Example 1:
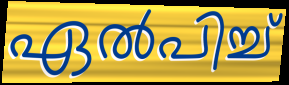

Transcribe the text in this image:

ഏൽപിച്ച്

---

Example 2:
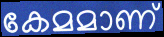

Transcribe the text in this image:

കേമമാണ്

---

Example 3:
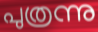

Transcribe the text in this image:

പുത്രന്നു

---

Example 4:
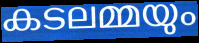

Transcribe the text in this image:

കടലമ്മയും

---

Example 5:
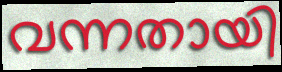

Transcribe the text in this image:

വന്നതായി